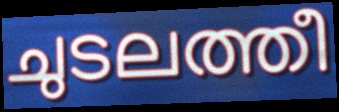
ചുടലത്തീ